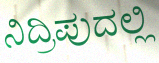
ನಿದ್ರಿಪುದಲ್ಲಿ